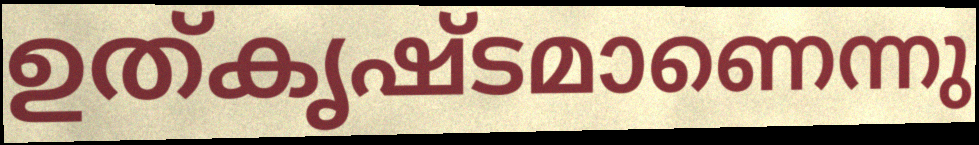
ഉത്കൃഷ്ടമാണെന്നു